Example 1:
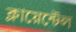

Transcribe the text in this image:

ক্লায়েন্টেল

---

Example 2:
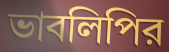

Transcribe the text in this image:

ভাবলিপির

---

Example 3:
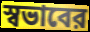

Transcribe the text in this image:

স্বভাবের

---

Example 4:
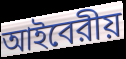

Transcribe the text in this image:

আইবেরীয়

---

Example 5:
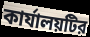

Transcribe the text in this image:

কার্যালয়টির